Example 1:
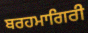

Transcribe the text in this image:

ਬਰਹਮਾਗਿਰੀ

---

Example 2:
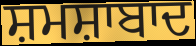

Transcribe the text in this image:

ਸ਼ਮਸ਼ਾਬਾਦ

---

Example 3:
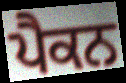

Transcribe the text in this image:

ਪੈਕਨ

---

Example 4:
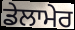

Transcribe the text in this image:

ਡੇਲਾਮੇਰ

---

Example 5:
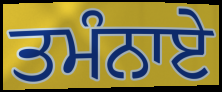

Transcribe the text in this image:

ਤਮੰਨਾਏ